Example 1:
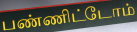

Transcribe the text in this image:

பண்ணிட்டோம்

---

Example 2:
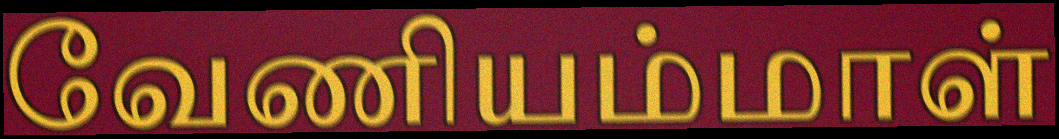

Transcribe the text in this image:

வேணியம்மாள்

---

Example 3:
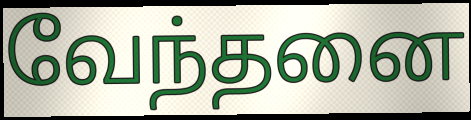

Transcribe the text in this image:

வேந்தனை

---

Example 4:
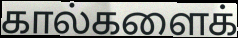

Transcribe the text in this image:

கால்களைக்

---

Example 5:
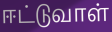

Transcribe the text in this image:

ஈட்டுவாள்